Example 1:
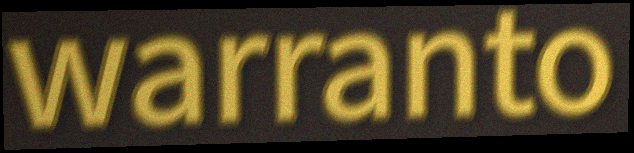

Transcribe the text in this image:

warranto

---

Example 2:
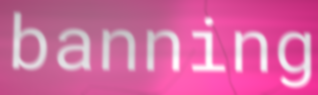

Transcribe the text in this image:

banning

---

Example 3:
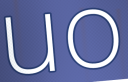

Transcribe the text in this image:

uo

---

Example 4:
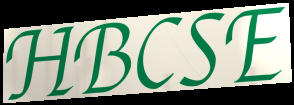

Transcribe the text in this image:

HBCSE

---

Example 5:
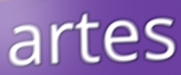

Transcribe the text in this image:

artes